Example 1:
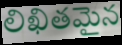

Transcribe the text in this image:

లిఖితమైన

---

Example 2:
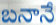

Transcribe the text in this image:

బనానే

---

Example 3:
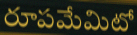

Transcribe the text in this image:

రూపమేమిటో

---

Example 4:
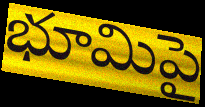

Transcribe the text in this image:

భూమిపై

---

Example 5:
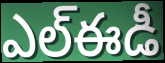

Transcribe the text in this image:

ఎల్ఈడీ